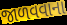
જાળવવાના